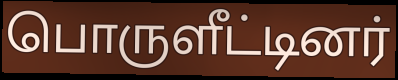
பொருளீட்டினர்